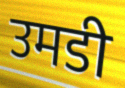
उमडी